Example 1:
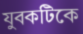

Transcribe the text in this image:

যুবকটিকে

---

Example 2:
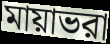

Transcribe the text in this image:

মায়াভরা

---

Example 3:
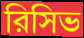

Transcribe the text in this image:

রিসিভ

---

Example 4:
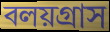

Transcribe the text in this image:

বলয়গ্রাস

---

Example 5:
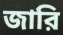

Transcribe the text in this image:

জারি